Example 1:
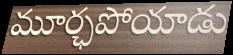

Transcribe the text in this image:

మూర్ఛపోయాడు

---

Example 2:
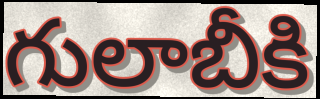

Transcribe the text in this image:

గులాబీకి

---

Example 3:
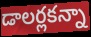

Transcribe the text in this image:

డాలర్లకన్నా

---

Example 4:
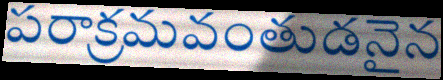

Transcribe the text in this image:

పరాక్రమవంతుడనైన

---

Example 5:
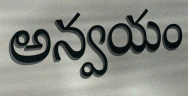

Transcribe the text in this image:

అన్వయం